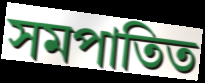
সমপাতিত